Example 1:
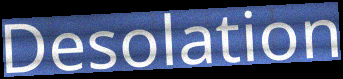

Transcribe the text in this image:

Desolation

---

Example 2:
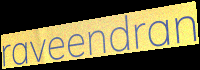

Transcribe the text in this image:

raveendran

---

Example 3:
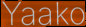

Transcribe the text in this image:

Yaako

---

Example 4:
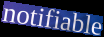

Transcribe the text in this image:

notifiable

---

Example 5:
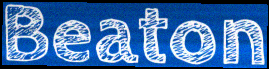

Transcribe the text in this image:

Beaton